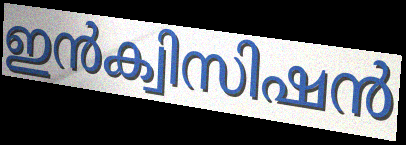
ഇൻക്വിസിഷൻ